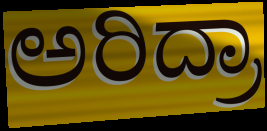
ಅರಿದ್ರಾ